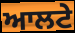
ਆਲਟੇ